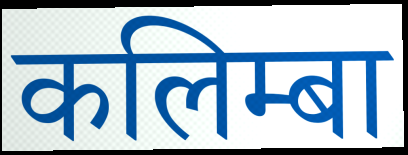
कलिम्बा